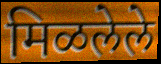
मिळलेले